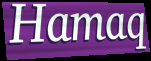
Hamaq